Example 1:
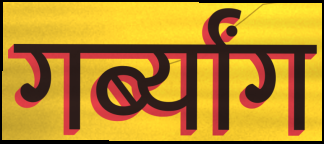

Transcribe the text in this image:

गर्ब्यांग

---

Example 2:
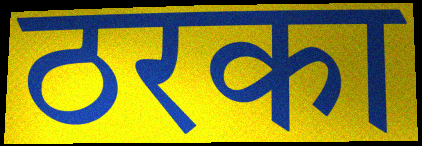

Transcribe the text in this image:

ठरका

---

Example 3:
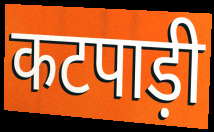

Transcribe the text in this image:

कटपाड़ी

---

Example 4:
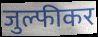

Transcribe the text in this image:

जुल्फीकर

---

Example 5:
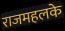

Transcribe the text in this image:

राजमहलके